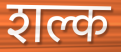
शल्क